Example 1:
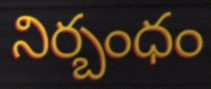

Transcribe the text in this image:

నిర్బంధం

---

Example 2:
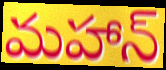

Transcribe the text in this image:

మహాన్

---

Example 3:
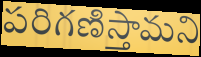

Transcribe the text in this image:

పరిగణిస్తామని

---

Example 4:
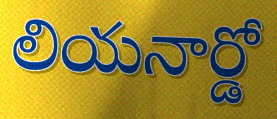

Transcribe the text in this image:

లియనార్డో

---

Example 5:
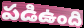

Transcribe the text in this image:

పడిఉంది